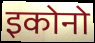
इकोनो